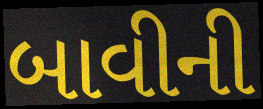
બાવીની